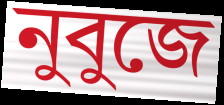
নুবুজে